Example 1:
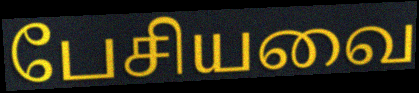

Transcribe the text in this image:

பேசியவை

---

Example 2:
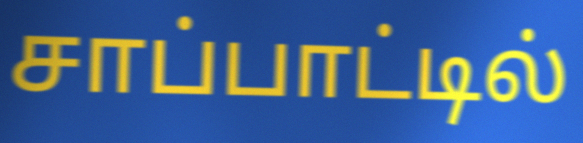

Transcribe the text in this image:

சாப்பாட்டில்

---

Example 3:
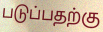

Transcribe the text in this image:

படுப்பதற்கு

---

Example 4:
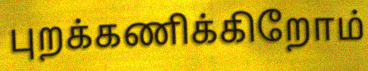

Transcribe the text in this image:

புறக்கணிக்கிறோம்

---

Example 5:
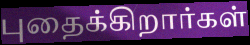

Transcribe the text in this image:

புதைக்கிறார்கள்